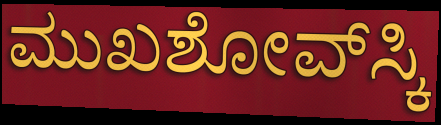
ಮುಖಶೋವ್‌ಸ್ಕಿ